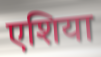
एशिया